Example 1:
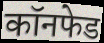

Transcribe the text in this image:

कॉनफेड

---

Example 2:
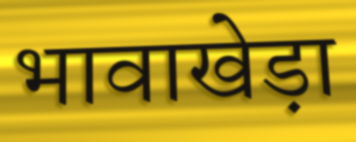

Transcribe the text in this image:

भावाखेड़ा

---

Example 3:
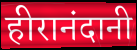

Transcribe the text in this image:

हीरानंदानी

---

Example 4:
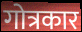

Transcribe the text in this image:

गोत्रकार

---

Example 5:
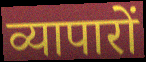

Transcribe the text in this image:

व्यापारों